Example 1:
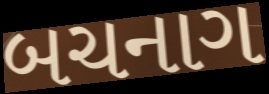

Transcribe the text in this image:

બચનાગ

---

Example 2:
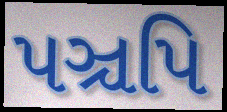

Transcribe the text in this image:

પઞ્ચપિ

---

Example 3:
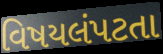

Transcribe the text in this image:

વિષયલંપટતા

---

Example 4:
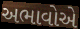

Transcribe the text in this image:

અભાવોએ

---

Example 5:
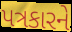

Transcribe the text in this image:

પત્રકારને